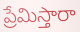
ప్రేమిస్తారా